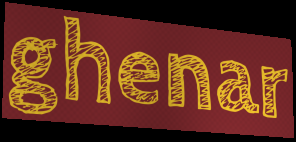
ghenar